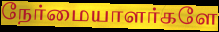
நேர்மையாளர்களே